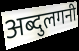
अब्दुलगनी